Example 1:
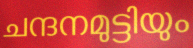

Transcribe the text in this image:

ചന്ദനമുട്ടിയും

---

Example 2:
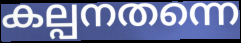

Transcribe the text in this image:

കല്പനതന്നെ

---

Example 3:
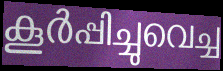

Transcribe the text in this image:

കൂർപ്പിച്ചുവെച്ച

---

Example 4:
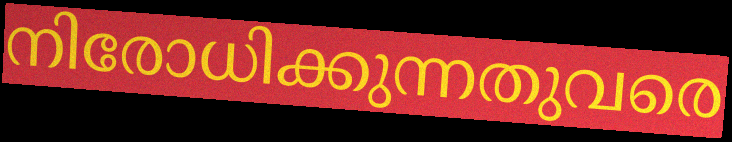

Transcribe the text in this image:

നിരോധിക്കുന്നതുവരെ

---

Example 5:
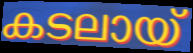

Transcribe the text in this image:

കടലായ്